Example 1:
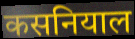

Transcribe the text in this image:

कसनियाल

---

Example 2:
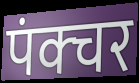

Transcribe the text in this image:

पंक्‍चर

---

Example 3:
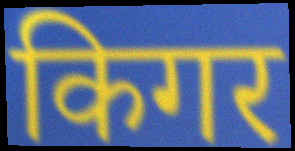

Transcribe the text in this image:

किगर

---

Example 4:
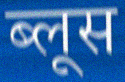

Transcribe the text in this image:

ब्लूस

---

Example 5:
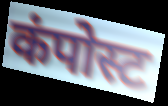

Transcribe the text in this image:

कंपोस्ट